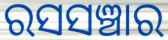
ରସସଞ୍ଚାର